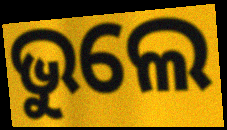
ଭୁଲେ